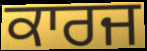
ਕਾਰਜ